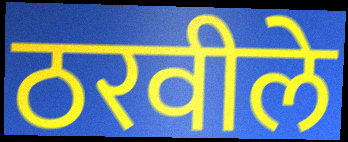
ठरवीले